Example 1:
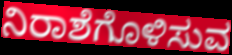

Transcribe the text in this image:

ನಿರಾಶೆಗೊಳಿಸುವ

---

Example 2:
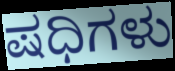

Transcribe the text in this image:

ಷಧಿಗಳು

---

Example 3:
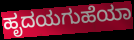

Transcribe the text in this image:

ಹೃದಯಗುಹೆಯಾ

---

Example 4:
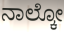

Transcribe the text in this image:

ನಾಲ್ಕೋ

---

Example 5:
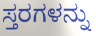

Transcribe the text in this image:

ಸ್ತರಗಳನ್ನು